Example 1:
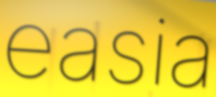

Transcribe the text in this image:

easia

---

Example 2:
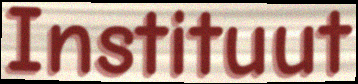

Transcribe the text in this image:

Instituut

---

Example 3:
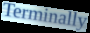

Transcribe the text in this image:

Terminally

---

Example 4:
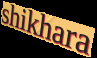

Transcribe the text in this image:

shikhara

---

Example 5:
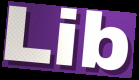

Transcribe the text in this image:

Lib